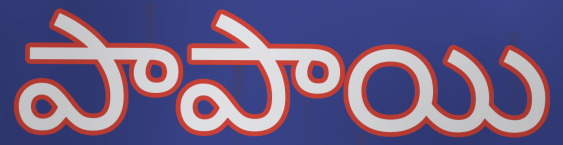
పాపాయి